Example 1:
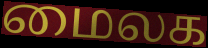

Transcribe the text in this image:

மைலக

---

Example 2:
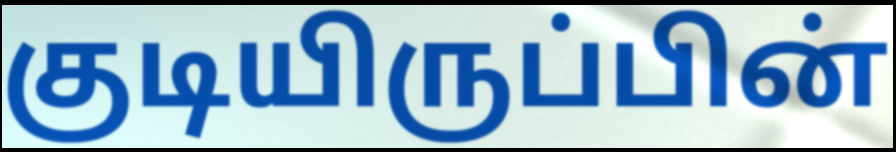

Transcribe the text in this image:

குடியிருப்பின்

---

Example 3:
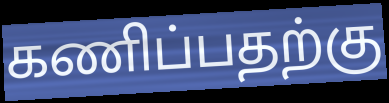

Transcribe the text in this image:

கணிப்பதற்கு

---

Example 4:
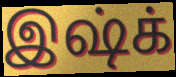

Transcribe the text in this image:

இஷ்க்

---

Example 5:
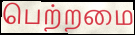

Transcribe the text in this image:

பெற்றமை